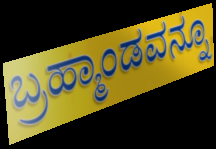
ಬ್ರಹ್ಮಾಂಡವನ್ನೂ